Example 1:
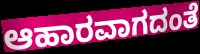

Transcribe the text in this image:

ಆಹಾರವಾಗದಂತೆ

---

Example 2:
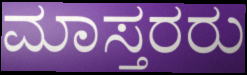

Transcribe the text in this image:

ಮಾಸ್ತರರು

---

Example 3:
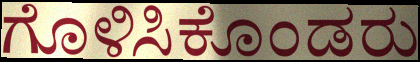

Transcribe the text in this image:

ಗೊಳಿಸಿಕೊಂಡರು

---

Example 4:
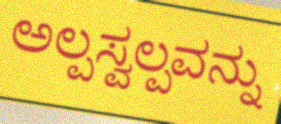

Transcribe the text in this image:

ಅಲ್ಪಸ್ವಲ್ಪವನ್ನು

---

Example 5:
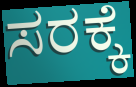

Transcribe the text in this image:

ಸರಕ್ಕೆ